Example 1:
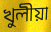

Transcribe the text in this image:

খুলীয়া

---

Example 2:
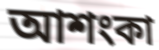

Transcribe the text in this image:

আশংকা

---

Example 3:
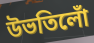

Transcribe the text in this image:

উভতিলোঁ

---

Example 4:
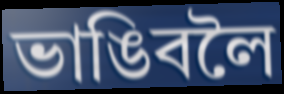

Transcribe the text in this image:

ভাঙিবলৈ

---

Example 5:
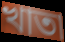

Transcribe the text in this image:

খাতা